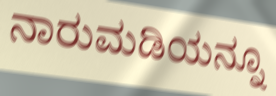
ನಾರುಮಡಿಯನ್ನೂ